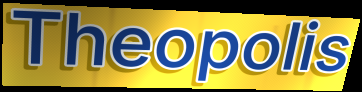
Theopolis